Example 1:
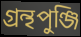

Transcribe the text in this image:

গ্রন্থপুঞ্জি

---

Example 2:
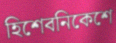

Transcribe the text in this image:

হিশেবনিকেশে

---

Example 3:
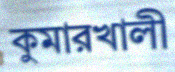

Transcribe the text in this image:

কুমারখালী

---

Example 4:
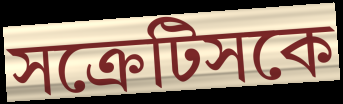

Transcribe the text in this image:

সক্রেটিসকে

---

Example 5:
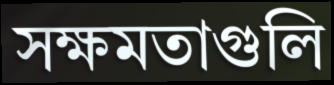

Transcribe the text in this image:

সক্ষমতাগুলি